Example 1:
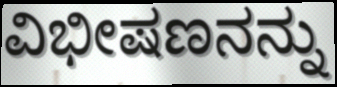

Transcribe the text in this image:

ವಿಭೀಷಣನನ್ನು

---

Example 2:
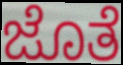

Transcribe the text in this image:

ಜೊತೆ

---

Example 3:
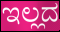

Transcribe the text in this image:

ಇಲ್ಲದ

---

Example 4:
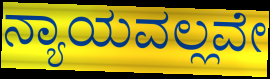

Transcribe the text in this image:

ನ್ಯಾಯವಲ್ಲವೇ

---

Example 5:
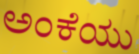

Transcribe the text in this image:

ಅಂಕೆಯು